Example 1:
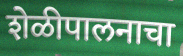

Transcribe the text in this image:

शेळीपालनाचा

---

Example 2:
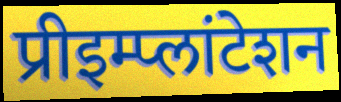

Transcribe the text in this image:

प्रीइम्प्लांटेशन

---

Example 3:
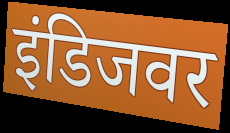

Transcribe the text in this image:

इंडिजवर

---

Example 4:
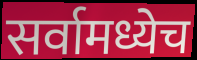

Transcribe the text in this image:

सर्वामध्येच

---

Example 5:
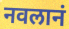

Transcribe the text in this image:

नवलानं